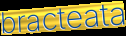
bracteata